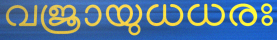
വജ്രായുധധരഃ